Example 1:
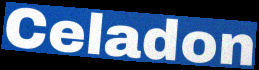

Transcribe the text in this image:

Celadon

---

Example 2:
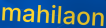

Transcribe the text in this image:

mahilaon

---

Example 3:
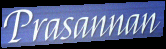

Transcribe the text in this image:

Prasannan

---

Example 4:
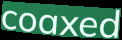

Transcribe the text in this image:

coaxed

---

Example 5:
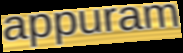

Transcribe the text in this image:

appuram